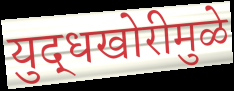
युद्धखोरीमुळे